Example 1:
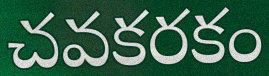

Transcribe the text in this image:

చవకరకం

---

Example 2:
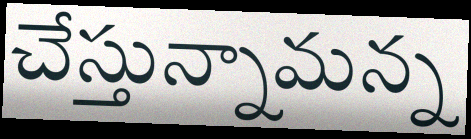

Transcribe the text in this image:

చేస్తున్నామన్న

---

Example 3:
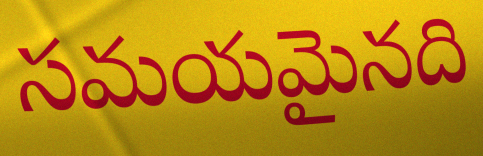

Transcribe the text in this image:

సమయమైనది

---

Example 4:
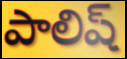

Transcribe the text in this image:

పాలిష్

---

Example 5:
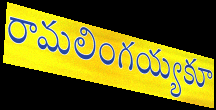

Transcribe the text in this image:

రామలింగయ్యకూ